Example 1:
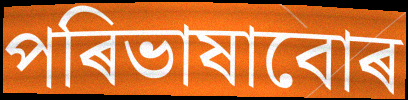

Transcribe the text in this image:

পৰিভাষাবোৰ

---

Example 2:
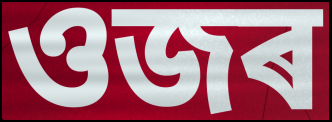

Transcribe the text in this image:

ওজৰ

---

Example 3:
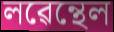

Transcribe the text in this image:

লৱেন্থেল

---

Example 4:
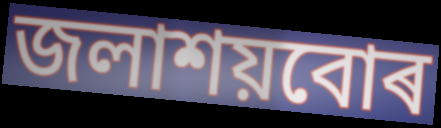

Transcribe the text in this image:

জলাশয়বোৰ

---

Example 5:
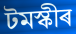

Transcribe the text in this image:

টমস্কীৰ